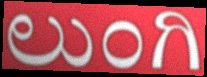
ಲುಂಗಿ